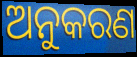
ଅନୁକରଣ